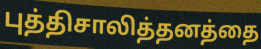
புத்திசாலித்தனத்தை